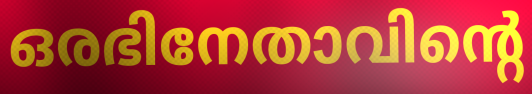
ഒരഭിനേതാവിന്റെ